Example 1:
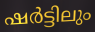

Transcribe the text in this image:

ഷർട്ടിലും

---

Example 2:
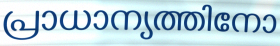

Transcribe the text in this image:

പ്രാധാന്യത്തിനോ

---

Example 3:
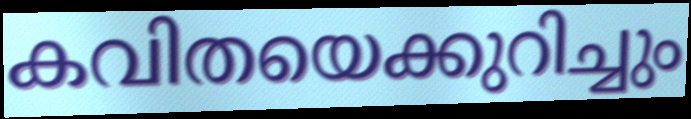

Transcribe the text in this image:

കവിതയെക്കുറിച്ചും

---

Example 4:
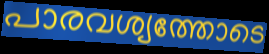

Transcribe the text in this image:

പാരവശ്യത്തോടെ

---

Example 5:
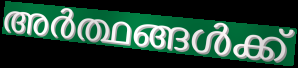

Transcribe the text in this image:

അർത്ഥങ്ങൾക്ക്